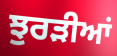
ਝੁਰੜੀਆਂ